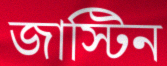
জাস্টিন